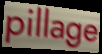
pillage